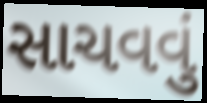
સાચવવું